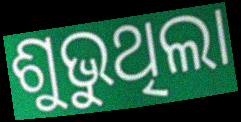
ଶୁଭୁଥିଲା